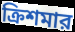
ক্রিশমার